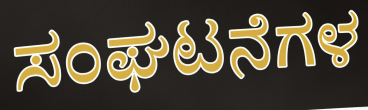
ಸಂಘಟನೆಗಳ